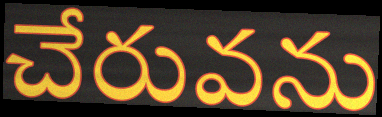
చేరువను